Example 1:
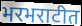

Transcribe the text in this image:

भरभराटीत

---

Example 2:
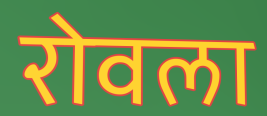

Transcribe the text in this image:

रोवला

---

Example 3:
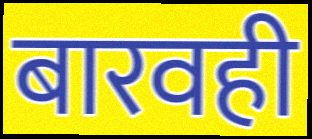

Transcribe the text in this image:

बारवही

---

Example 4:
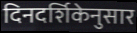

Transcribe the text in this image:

दिनदर्शिकेनुसार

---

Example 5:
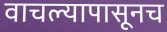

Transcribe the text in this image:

वाचल्यापासूनच